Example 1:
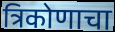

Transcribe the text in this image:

त्रिकोणाचा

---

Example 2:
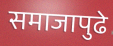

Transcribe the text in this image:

समाजापुढे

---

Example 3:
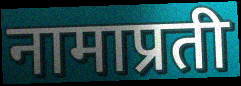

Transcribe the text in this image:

नामाप्रती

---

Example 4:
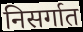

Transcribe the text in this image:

निसर्गात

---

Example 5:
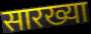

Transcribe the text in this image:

सारख्या